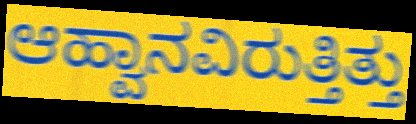
ಆಹ್ವಾನವಿರುತ್ತಿತ್ತು